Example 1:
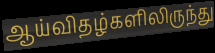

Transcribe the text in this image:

ஆய்விதழ்களிலிருந்து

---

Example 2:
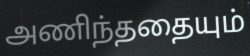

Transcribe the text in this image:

அணிந்ததையும்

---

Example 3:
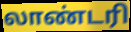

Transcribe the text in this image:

லாண்டரி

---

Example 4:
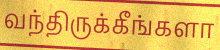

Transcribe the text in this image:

வந்திருக்கீங்களா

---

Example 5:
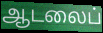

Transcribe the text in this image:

ஆடலைப்